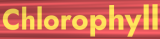
Chlorophyll